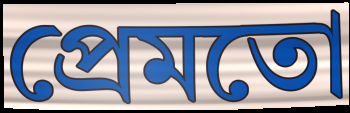
প্ৰেমতো